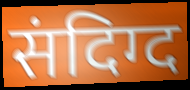
संदिग्द